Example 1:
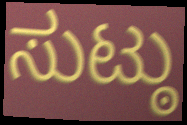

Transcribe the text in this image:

ಸುಟ್ಠು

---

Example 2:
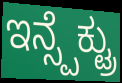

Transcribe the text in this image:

ಇನ್ಸ್ಪೆಕ್ಟ್ರು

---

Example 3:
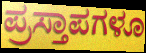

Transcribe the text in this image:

ಪ್ರಸ್ತಾಪಗಳೂ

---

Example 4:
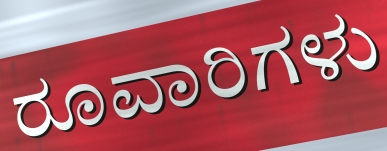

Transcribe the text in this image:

ರೂವಾರಿಗಳು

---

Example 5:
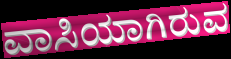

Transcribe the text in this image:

ವಾಸಿಯಾಗಿರುವ